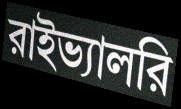
রাইভ্যালরি